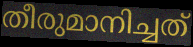
തീരുമാനിച്ചത്